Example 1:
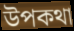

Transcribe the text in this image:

উপকথা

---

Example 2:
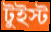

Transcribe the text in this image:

টুইস্ট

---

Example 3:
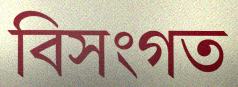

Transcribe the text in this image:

বিসংগত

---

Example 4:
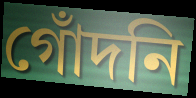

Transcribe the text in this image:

গোঁদনি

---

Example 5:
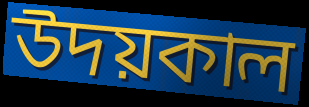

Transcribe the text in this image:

উদয়কাল